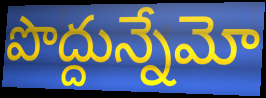
పొద్దున్నేమో